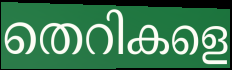
തെറികളെ